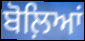
ਬੋਲ਼ਿਆਂ